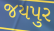
જયપુર